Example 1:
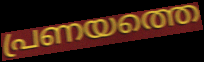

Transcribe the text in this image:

പ്രണയത്തെ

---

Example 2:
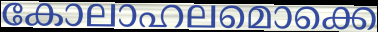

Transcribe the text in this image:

കോലാഹലമൊക്കെ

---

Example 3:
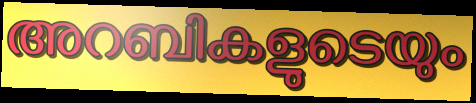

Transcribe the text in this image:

അറബികളുടെയും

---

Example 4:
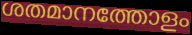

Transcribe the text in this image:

ശതമാനത്തോളം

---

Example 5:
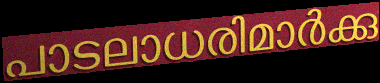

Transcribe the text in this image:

പാടലാധരിമാർക്കു